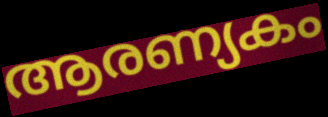
ആരണ്യകം